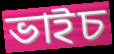
ভাইচ